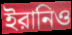
ইরানিও